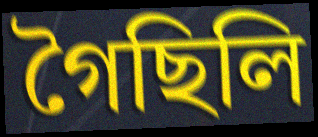
গৈছিলি